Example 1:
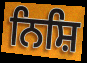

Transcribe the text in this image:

ਨਿਸ਼ਿ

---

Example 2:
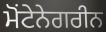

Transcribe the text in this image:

ਮੋਂਟੇਨੇਗਰੀਨ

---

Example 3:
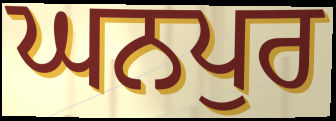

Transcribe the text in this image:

ਘਨਪੁਰ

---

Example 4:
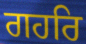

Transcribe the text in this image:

ਗਹਰਿ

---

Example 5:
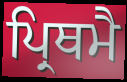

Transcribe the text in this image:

ਪ੍ਰਿਥਮੈ